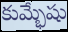
కుమ్భేషు